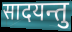
सादयन्तु